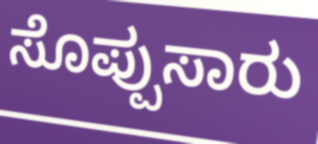
ಸೊಪ್ಪುಸಾರು